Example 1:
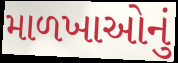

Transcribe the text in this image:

માળખાઓનું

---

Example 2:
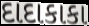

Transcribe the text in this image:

દાદાકાકા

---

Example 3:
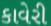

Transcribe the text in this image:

કાવેરી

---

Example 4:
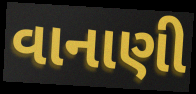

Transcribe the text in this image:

વાનાણી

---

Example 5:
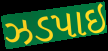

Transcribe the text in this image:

ઝડપાઇ